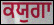
ਕਯੁਗਾ